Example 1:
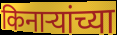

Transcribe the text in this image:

किनाऱ्यांच्या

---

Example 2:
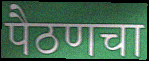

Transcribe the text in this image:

पैठणचा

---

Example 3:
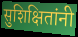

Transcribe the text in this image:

सुशिक्षितांनी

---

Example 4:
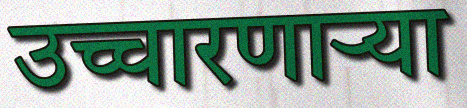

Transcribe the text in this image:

उच्चारणाऱ्या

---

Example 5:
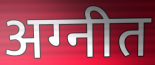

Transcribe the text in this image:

अग्नीत